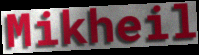
Mikheil